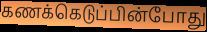
கணக்கெடுப்பின்போது